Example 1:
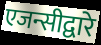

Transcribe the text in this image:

एजन्सीद्वारे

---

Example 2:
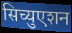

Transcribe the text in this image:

सिच्युएशन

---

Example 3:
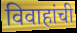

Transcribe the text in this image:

विवाहांची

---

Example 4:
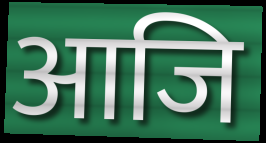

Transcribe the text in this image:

आजि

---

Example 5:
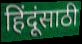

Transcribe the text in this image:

हिंदूंसाठी